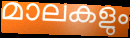
മാലകളും